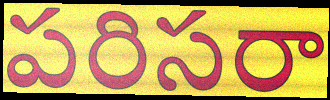
పరిసరా